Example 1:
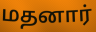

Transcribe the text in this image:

மதனார்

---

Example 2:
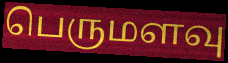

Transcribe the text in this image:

பெருமளவு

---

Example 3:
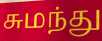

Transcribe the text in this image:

சுமந்து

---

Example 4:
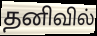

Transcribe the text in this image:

தனிவில்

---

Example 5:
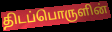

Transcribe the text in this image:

திடப்பொருளின்